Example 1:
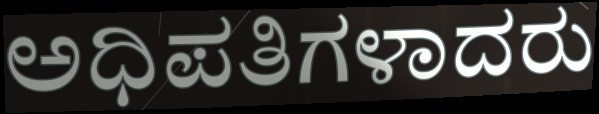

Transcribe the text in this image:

ಅಧಿಪತಿಗಳಾದರು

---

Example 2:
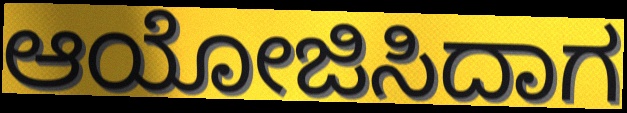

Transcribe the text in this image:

ಆಯೋಜಿಸಿದಾಗ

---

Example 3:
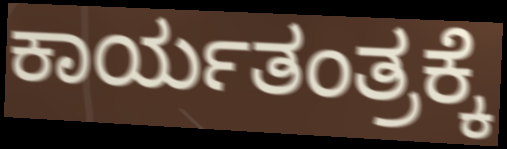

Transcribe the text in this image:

ಕಾರ್ಯತಂತ್ರಕ್ಕೆ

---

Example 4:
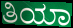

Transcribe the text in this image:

ತಿಯಾ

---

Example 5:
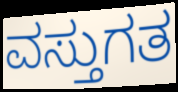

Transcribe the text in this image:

ವಸ್ತುಗತ